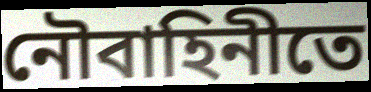
নৌবাহিনীতে